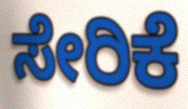
ಸೇರಿಕೆ